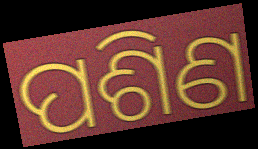
ପଶିଣ